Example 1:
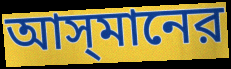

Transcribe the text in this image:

আস্‌মানের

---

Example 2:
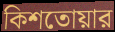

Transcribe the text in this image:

কিশতোয়ার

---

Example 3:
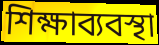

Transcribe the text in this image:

শিক্ষাব্যবস্থা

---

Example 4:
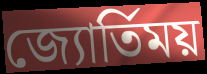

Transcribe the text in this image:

জ্যোর্তিময়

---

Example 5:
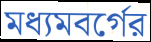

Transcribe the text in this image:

মধ্যমবর্গের